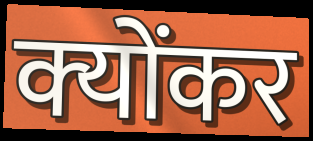
क्‍योंकर